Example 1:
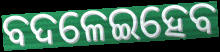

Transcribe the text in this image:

ବଦଳେଇହେବ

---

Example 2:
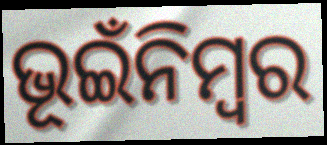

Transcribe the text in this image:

ଭୂଇଁନିମ୍ବର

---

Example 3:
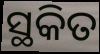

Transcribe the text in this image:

ସ୍ଥକିତ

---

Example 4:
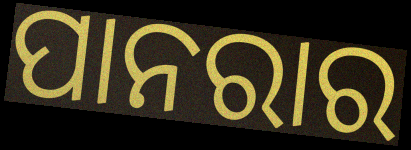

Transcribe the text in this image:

ପାନରାର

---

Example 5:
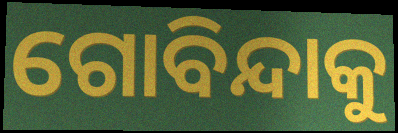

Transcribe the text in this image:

ଗୋବିନ୍ଦାକୁ